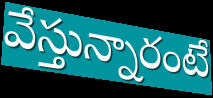
వేస్తున్నారంటే